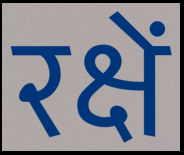
रक्षें